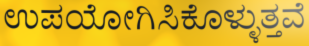
ಉಪಯೋಗಿಸಿಕೊಳ್ಳುತ್ತವೆ